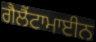
ਗੈਲੈਂਟਾਮਾਈਨ